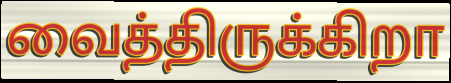
வைத்திருக்கிறா